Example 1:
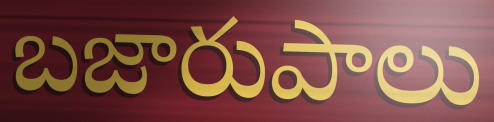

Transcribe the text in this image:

బజారుపాలు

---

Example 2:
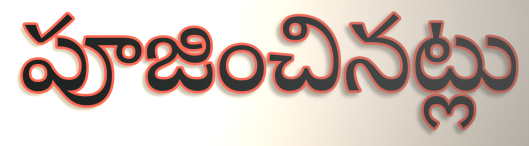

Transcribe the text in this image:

పూజించినట్లు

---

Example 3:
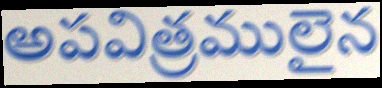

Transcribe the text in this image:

అపవిత్రములైన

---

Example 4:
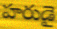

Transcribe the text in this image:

హరుడై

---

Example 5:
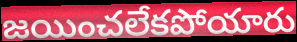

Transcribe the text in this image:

జయించలేకపోయారు